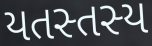
યતસ્તસ્ય